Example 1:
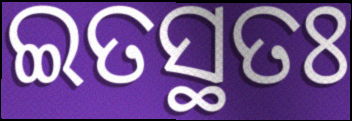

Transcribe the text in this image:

ଇତସ୍ଥତଃ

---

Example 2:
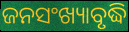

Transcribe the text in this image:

ଜନସଂଖ୍ୟାବୃଦ୍ଧି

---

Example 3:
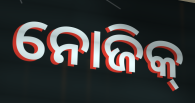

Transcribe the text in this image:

ନୋଜିକ୍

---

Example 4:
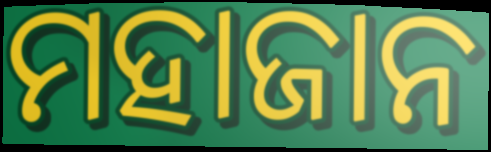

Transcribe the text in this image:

ମହାଜାନ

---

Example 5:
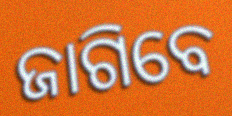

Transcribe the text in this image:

ଜାଗିବେ